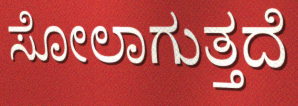
ಸೋಲಾಗುತ್ತದೆ